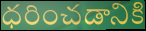
ధరించడానికి